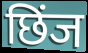
छिंज